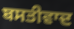
ਬਸਤੀਵਾਦ